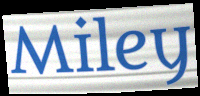
Miley